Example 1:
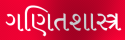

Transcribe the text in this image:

ગણિતશાસ્ત્ર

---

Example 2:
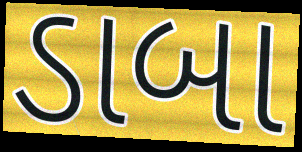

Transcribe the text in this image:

ડાબા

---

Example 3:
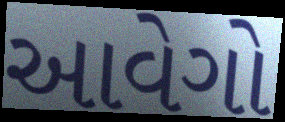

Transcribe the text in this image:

આવેગો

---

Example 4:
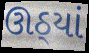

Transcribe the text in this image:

ઊઠ્યાં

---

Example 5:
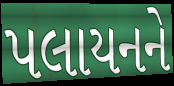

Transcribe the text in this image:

પલાયનને